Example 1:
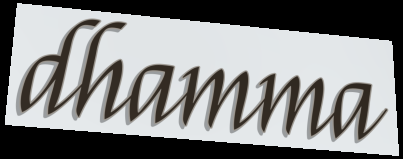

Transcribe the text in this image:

dhamma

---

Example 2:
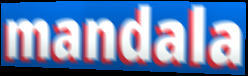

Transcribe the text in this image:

mandala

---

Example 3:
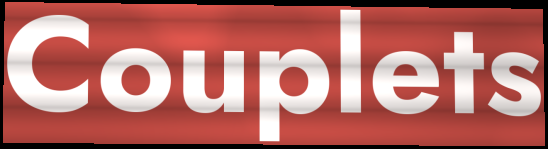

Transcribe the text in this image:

Couplets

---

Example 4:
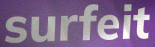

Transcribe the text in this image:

surfeit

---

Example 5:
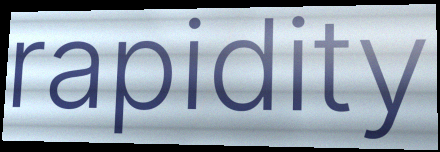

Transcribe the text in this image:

rapidity